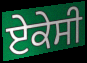
ਏਕੇਸੀ